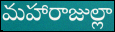
మహారాజుల్లా